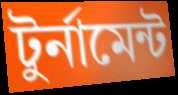
টুর্নামেন্ট